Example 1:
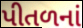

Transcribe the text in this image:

પીતળનાં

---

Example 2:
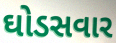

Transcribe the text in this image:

ઘોડસવાર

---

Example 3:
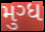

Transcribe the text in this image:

મુગ્ધ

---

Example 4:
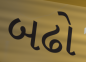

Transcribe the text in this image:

બઢો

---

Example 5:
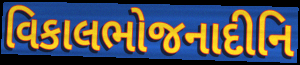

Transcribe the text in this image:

વિકાલભોજનાદીનિ